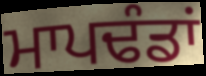
ਮਾਪਢੰਡਾਂ